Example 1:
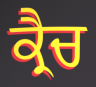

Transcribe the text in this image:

ਕ੍ਰੈਚ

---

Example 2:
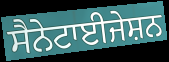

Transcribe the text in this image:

ਸੈਨੇਟਾਈਜੇਸ਼ਨ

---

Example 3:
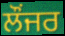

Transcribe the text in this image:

ਲੌਂਜਰ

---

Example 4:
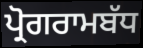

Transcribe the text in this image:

ਪ੍ਰੋਗਰਾਮਬੱਧ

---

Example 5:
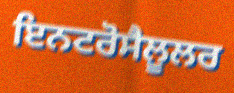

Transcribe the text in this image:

ਇਨਟਰੋਸੈਲੂਲਰ